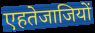
एहतेजाजियों